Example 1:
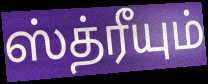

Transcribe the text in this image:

ஸ்த்ரீயும்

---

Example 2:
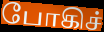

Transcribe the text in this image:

போகிச்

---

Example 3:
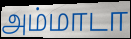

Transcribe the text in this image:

அம்மாடா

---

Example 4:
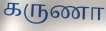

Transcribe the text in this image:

கருணா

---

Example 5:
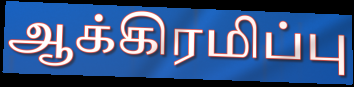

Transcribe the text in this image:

ஆக்கிரமிப்பு